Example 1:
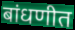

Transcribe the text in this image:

बांधणीत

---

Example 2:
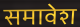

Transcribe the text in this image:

समावेश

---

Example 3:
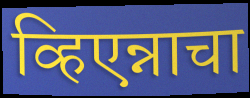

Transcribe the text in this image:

व्हिएन्नाचा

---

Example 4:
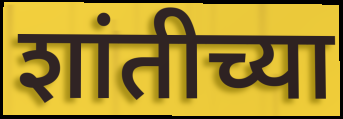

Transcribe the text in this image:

शांतीच्या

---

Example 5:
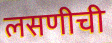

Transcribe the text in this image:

लसणीची